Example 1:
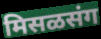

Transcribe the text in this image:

मिसळसंग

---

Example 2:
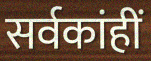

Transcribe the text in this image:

सर्वकांहीं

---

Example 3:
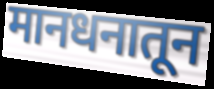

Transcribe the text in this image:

मानधनातून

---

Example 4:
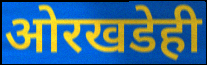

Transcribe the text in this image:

ओरखडेही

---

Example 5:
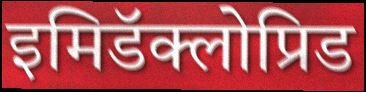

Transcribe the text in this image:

इमिडॅक्लोप्रिड